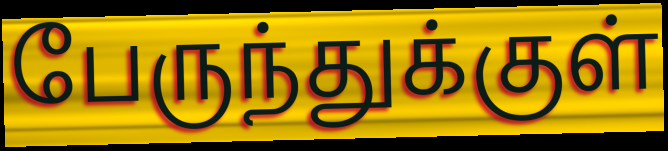
பேருந்துக்குள்